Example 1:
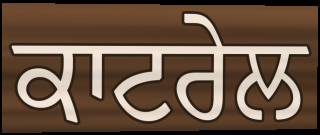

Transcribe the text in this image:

ਕਾਟਰੇਲ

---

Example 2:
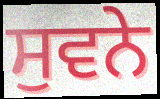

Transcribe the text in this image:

ਸੁਵਨੇ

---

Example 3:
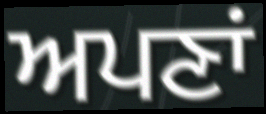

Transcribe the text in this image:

ਅਪਣਾਂ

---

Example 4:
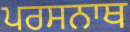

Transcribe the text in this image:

ਪਰਸਨਾਥ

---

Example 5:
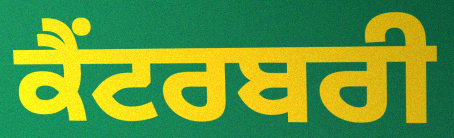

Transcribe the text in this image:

ਕੈਂਟਰਬਰੀ